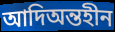
আদিঅন্তহীন